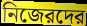
নিজেরদের